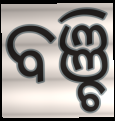
ବଞ୍ଚି